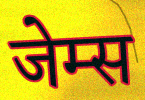
जेम्स